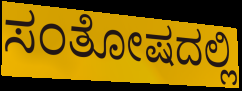
ಸಂತೋಷದಲ್ಲಿ